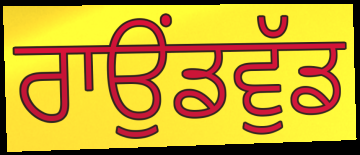
ਰਾਉਂਡਵੁੱਡ